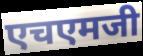
एचएमजी